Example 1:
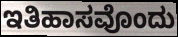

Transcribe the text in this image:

ಇತಿಹಾಸವೊಂದು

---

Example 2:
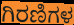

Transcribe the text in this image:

ಗಿರಣಿಗಳ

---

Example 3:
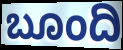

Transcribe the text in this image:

ಬೂಂದಿ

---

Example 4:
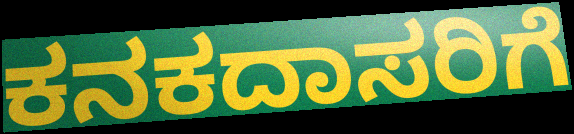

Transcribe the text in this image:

ಕನಕದಾಸರಿಗೆ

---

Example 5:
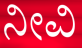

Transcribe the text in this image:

ನೀವಿ